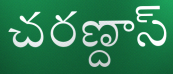
చరణ్దాస్